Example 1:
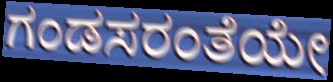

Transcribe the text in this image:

ಗಂಡಸರಂತೆಯೇ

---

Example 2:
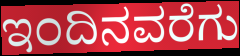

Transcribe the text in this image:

ಇಂದಿನವರೆಗು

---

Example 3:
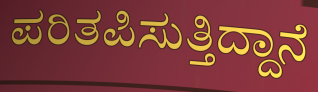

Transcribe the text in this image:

ಪರಿತಪಿಸುತ್ತಿದ್ದಾನೆ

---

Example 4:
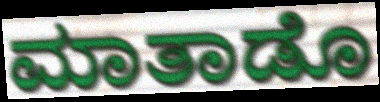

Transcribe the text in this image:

ಮಾತಾಡೊ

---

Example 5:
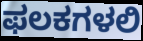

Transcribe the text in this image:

ಫಲಕಗಳಲಿ